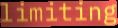
limiting